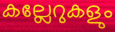
കല്ലേറുകളും